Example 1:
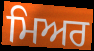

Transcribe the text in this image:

ਮਿਅਰ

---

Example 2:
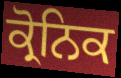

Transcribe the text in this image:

ਕ੍ਰੋਨਿਕ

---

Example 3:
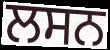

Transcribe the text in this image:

ਲਸਨ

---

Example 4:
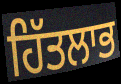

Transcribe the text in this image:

ਹਿੱਤਲਾਭ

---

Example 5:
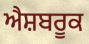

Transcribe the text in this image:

ਐਸ਼ਬਰੂਕ